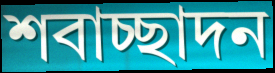
শবাচ্ছাদন